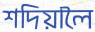
শদিয়ালৈ